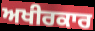
ਅਖੀਰਕਾਰ